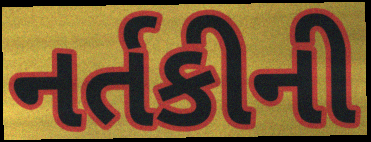
નર્તકીની